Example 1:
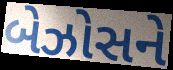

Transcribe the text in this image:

બેઝોસને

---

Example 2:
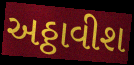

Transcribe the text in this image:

અઠ્ઠાવીશ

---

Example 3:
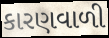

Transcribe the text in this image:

કારણવાળી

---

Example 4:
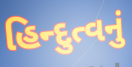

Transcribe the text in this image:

હિન્દુત્વનું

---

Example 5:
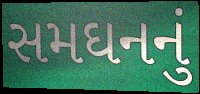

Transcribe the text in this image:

સમઘનનું